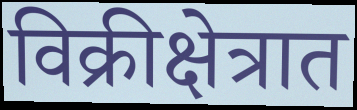
विक्रीक्षेत्रात